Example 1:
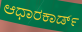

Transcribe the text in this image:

ಆಧಾರಕಾರ್ಡ್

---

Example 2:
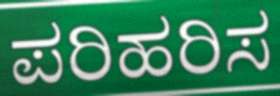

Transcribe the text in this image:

ಪರಿಹರಿಸ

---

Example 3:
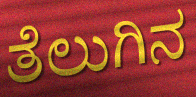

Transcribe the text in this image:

ತೆಲುಗಿನ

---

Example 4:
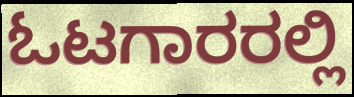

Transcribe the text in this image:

ಓಟಗಾರರಲ್ಲಿ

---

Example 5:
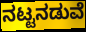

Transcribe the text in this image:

ನಟ್ಟನಡುವೆ